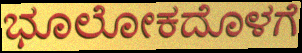
ಭೂಲೋಕದೊಳಗೆ